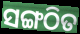
ସଙ୍ଗଠିତ